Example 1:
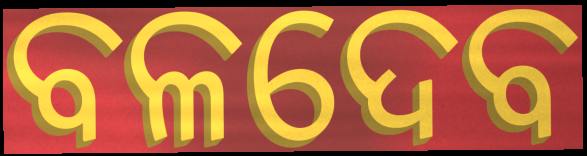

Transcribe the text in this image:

ବଳଦେବ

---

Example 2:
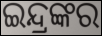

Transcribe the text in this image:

ଇନ୍ଦ୍ରଙ୍କର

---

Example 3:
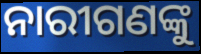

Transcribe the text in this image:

ନାରୀଗଣଙ୍କୁ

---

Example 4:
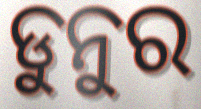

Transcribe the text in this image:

ଡୁନୁର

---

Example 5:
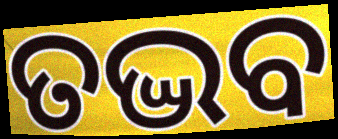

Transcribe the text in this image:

ତଦ୍ଭବ